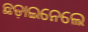
ଛଡ଼ାଇନେଲେ